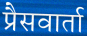
प्रैसवार्ता